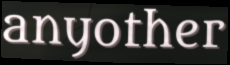
anyother